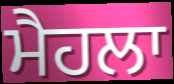
ਮੈਹਲਾ